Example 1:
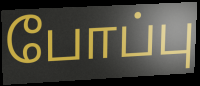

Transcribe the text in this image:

போப்பு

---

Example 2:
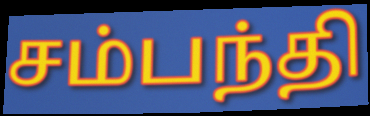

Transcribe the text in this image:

சம்பந்தி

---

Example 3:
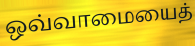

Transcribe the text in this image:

ஒவ்வாமையைத்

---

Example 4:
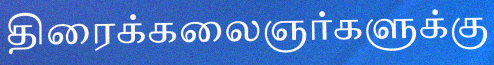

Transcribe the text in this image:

திரைக்கலைஞர்களுக்கு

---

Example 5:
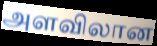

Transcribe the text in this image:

அளவிலான